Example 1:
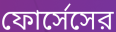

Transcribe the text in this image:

ফোর্সেসের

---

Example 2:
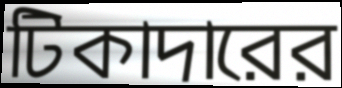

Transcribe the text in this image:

টিকাদারের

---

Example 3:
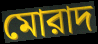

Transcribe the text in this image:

মোরাদ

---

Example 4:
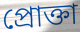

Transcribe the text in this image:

প্রোক্তা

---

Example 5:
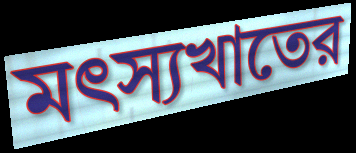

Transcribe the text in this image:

মৎস্যখাতের